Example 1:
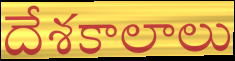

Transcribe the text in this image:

దేశకాలాలు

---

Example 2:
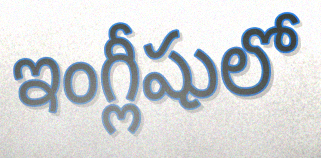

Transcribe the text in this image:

ఇంగ్లీషులో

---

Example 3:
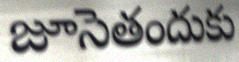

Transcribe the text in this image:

జూసెతందుకు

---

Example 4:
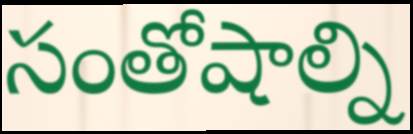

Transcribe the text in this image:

సంతోషాల్ని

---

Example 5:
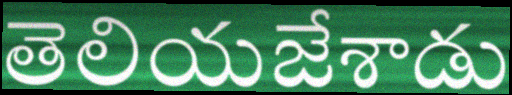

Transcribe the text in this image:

తెలియజేశాడు